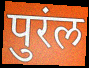
पुरंल